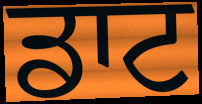
ਡਾਟ